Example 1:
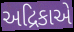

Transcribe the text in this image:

અદ્રિકાએ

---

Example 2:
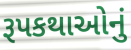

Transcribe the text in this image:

રૂપકથાઓનું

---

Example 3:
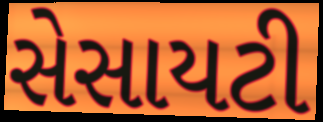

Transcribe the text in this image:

સેસાયટી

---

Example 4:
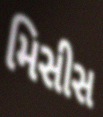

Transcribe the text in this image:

મિસીસ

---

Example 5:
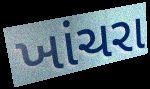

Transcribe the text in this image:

ખાંચરા